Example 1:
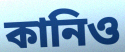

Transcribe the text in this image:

কানিও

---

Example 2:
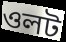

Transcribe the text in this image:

ওলট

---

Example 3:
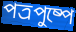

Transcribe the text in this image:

পত্রপুষ্পে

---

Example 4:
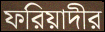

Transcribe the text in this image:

ফরিয়াদীর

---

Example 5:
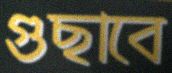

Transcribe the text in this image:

গুছাবে